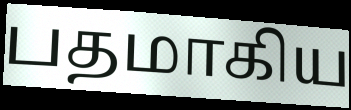
பதமாகிய